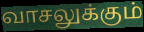
வாசலுக்கும்